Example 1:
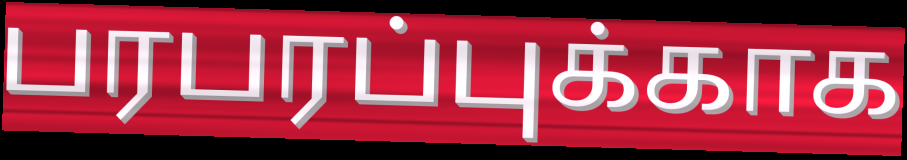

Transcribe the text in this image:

பரபரப்புக்காக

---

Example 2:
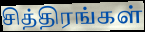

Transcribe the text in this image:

சித்திரங்கள்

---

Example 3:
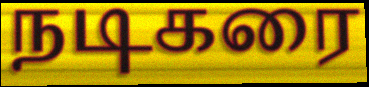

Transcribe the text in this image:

நடிகரை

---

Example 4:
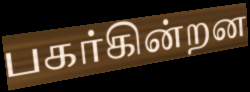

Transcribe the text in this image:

பகர்கின்றன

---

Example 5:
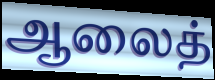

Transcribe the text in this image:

ஆலைத்